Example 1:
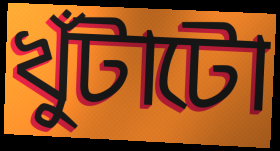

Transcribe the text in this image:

খুঁটাটো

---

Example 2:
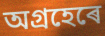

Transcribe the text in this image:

অগ্ৰহেৰে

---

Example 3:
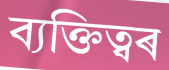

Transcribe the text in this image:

ব্যক্তিত্বৰ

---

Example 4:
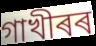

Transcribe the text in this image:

গাখীৰৰ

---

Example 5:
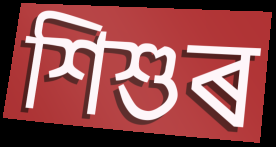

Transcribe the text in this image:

শিশুৰ